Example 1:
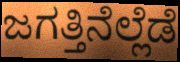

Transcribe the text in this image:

ಜಗತ್ತಿನೆಲ್ಲೆಡೆ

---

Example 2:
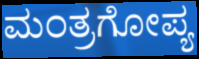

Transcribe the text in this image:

ಮಂತ್ರಗೋಪ್ಯ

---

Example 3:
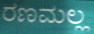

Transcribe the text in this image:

ರಣಮಲ್ಲ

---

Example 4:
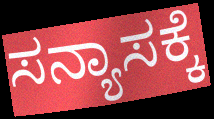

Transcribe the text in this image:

ಸನ್ಯಾಸಕ್ಕೆ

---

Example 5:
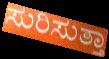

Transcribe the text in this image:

ಸುರಿಸುತ್ತಾ